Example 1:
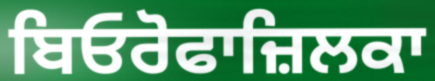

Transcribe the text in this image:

ਬਿਓਰੋਫਾਜ਼ਿਲਕਾ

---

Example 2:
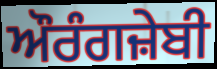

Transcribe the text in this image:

ਔਰੰਗਜ਼ੇਬੀ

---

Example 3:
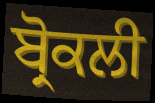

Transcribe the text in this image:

ਬ੍ਰੋਕਲੀ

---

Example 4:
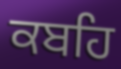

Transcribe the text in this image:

ਕਬਹਿ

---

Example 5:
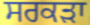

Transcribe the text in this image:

ਸਰਕੜਾ